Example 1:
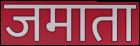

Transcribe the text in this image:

जमाता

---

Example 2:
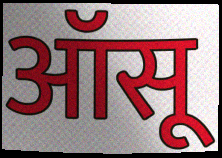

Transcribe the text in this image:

ऑसू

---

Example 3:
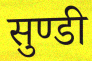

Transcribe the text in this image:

सुण्डी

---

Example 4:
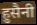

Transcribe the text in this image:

हुसैनी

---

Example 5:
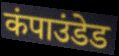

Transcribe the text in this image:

कंपाउंडेड